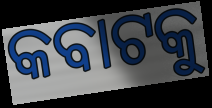
କବାଟକୁ